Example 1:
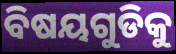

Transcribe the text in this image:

ବିଷୟଗୁଡିକୁ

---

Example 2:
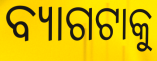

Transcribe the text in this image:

ବ୍ୟାଗଟାକୁ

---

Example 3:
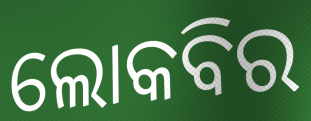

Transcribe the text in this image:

ଲୋକବିର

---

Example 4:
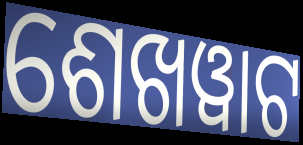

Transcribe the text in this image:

ଶେଖୱାଟ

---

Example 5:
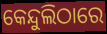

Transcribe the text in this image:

କେନ୍ଦୁଲିଠାରେ